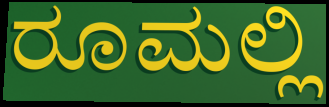
ರೂಮಲ್ಲಿ